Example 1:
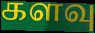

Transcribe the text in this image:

களவு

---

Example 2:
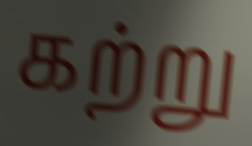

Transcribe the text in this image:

கற்று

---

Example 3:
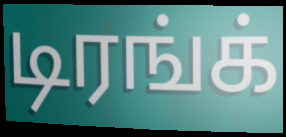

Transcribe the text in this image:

டிரங்க்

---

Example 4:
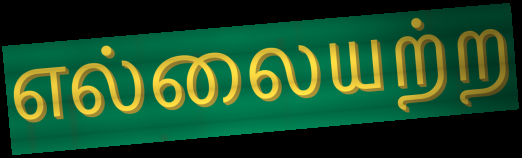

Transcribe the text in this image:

எல்லையற்ற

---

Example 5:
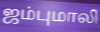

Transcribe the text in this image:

ஜம்புமாலி